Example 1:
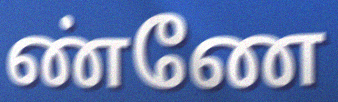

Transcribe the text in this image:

ண்ணே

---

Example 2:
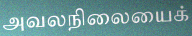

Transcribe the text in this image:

அவலநிலையைக்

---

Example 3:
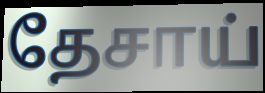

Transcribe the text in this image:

தேசாய்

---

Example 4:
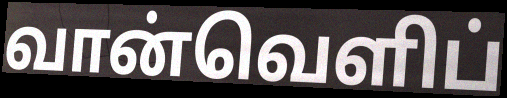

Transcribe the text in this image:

வான்வெளிப்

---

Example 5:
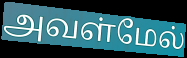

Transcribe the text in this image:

அவள்மேல்